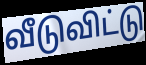
வீடுவிட்டு